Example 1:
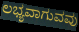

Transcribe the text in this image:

ಲಭ್ಯವಾಗುವವು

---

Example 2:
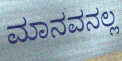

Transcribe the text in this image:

ಮಾನವನಲ್ಲ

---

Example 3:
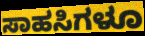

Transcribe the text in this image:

ಸಾಹಸಿಗಳೂ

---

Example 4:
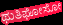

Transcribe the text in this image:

ಥುತಿಘೋಸೋ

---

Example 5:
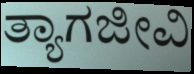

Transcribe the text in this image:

ತ್ಯಾಗಜೀವಿ